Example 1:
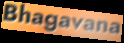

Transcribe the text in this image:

Bhagavana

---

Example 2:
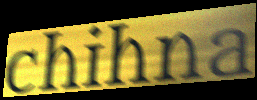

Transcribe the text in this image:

chihna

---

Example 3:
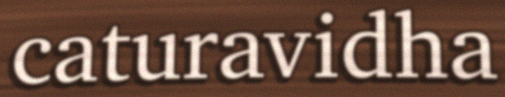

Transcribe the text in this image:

caturavidha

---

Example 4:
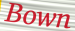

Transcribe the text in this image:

Bown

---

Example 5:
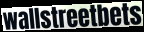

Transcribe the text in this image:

wallstreetbets